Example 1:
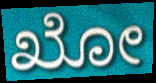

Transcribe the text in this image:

ಖೋ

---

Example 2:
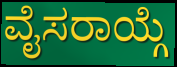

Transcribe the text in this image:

ವೈಸರಾಯ್ಗೆ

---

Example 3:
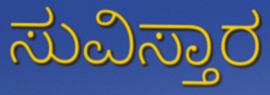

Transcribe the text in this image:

ಸುವಿಸ್ತಾರ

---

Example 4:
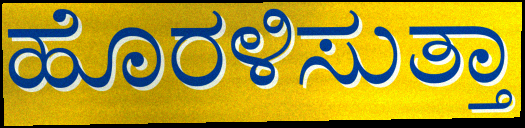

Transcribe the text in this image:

ಹೊರಳಿಸುತ್ತಾ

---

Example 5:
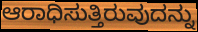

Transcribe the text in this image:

ಆರಾಧಿಸುತ್ತಿರುವುದನ್ನು